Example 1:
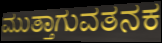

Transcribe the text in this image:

ಮುತ್ತಾಗುವತನಕ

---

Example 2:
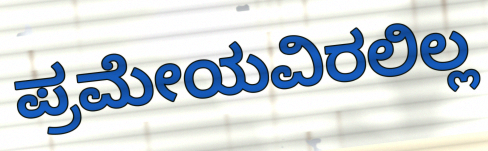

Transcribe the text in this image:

ಪ್ರಮೇಯವಿರಲಿಲ್ಲ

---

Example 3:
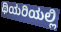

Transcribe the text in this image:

ಥಿಯರಿಯಲ್ಲಿ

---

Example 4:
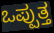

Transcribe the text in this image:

ಒಪ್ಪುತ್ತ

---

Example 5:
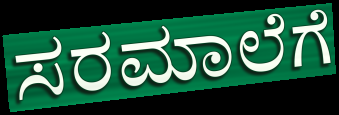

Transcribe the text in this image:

ಸರಮಾಲೆಗೆ